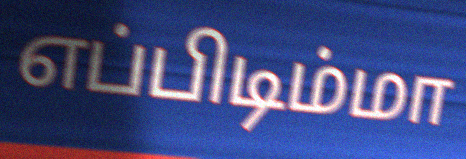
எப்பிடிம்மா